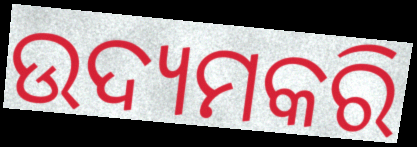
ଉଦ୍ୟମକରି